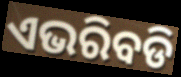
ଏଭରିବଡି